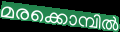
മരക്കൊമ്പിൽ